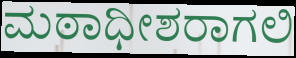
ಮಠಾಧೀಶರಾಗಲಿ